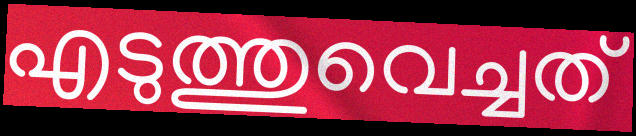
എടുത്തുവെച്ചത്